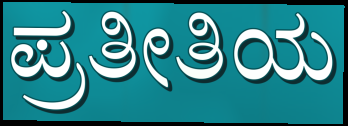
ಪ್ರತೀತಿಯ